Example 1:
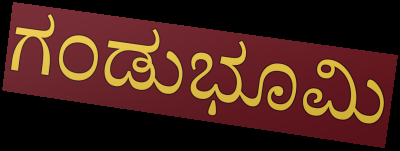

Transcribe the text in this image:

ಗಂಡುಭೂಮಿ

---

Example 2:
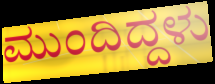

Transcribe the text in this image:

ಮುಂದಿದ್ದಳು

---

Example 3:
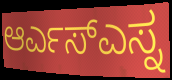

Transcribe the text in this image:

ಆರ್ಎಸ್ಎಸ್ನ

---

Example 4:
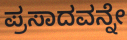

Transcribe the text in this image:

ಪ್ರಸಾದವನ್ನೇ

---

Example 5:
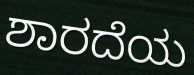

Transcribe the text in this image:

ಶಾರದೆಯ